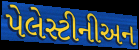
પેલેસ્ટીનીઅન